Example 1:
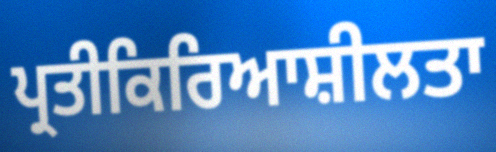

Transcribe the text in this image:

ਪ੍ਰਤੀਕਿਰਿਆਸ਼ੀਲਤਾ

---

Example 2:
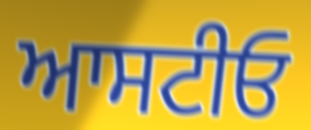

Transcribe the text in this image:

ਆਸਟੀਓ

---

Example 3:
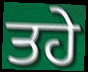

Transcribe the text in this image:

ਤਹੇ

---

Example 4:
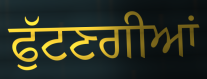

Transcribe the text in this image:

ਫੁੱਟਣਗੀਆਂ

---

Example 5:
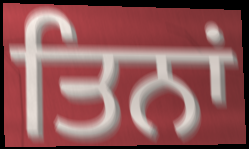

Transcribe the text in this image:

ਤਿਨਾਂ